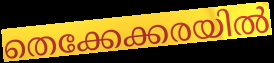
തെക്കേക്കരയിൽ